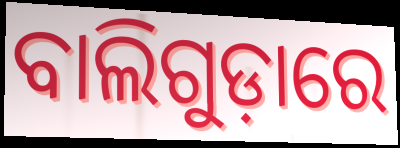
ବାଲିଗୁଡ଼ାରେ